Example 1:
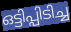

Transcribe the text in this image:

ഒട്ടിപ്പിടിച്ച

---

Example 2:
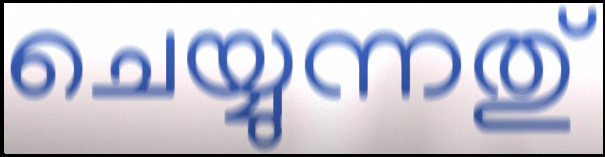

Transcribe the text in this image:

ചെയ്യുന്നതു്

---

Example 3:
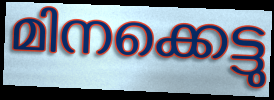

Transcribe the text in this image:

മിനക്കെട്ടു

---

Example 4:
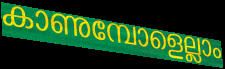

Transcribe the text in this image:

കാണുമ്പോളെല്ലാം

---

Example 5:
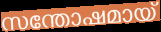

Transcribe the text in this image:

സന്തോഷമായ്